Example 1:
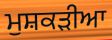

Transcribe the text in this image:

ਮੁਸ਼ਕੜੀਆ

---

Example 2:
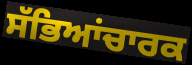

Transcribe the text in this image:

ਸੱਭਿਆਂਚਾਰਕ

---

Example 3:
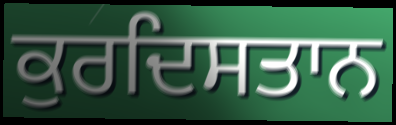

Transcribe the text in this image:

ਕੁਰਦਿਸਤਾਨ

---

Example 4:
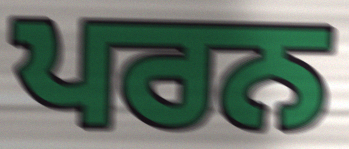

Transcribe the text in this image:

ਪਰਨ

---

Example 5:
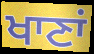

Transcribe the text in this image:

ਖਾਣਾਂ